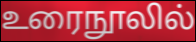
உரைநூலில்